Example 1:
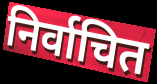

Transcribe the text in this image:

निर्वाचित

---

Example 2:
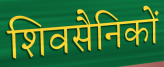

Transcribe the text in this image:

शिवसैनिकों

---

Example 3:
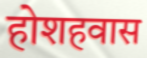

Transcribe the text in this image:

होशहवास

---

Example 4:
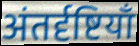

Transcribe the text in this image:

अंतर्दृष्टियाँ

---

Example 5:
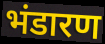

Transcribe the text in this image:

भंडारण